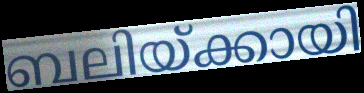
ബലിയ്ക്കായി